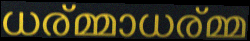
ധര്മ്മാധര്മ്മ